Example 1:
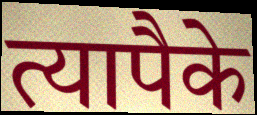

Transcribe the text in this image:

त्यापैके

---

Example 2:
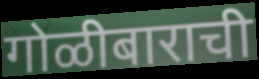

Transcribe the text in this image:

गोळीबाराची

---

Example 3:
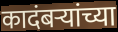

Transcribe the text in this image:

कादंबर्‍यांच्या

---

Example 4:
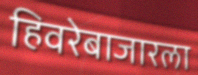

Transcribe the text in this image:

हिवरेबाजारला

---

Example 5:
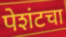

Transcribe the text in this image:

पेशंटचा